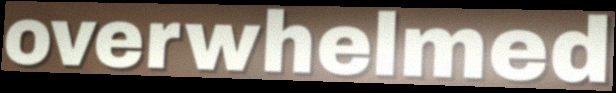
overwhelmed